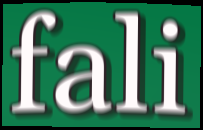
fali